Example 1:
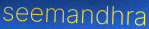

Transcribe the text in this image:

seemandhra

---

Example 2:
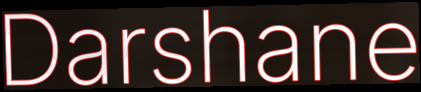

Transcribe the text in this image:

Darshane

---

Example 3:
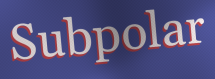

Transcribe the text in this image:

Subpolar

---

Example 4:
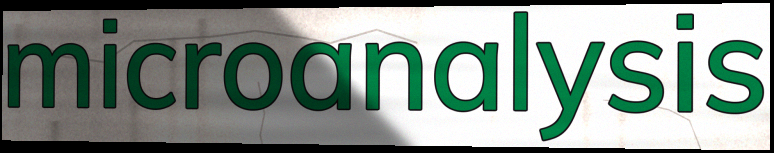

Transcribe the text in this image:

microanalysis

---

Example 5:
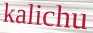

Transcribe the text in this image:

kalichu